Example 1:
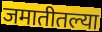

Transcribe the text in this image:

जमातीतल्या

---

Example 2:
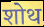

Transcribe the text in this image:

शोथ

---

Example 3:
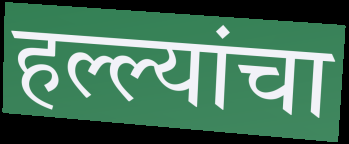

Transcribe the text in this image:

हल्ल्यांचा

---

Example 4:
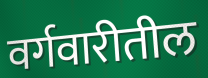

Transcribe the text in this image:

वर्गवारीतील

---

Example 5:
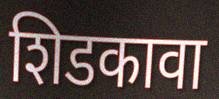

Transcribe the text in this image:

शिडकावा